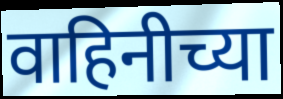
वाहिनीच्या